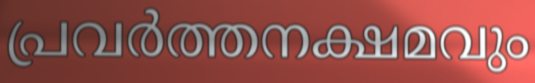
പ്രവർത്തനക്ഷമവും